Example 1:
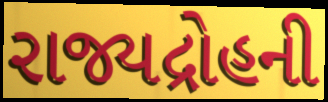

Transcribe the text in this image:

રાજ્યદ્રોહની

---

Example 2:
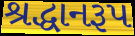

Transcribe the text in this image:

શ્રદ્ધાનરૂપ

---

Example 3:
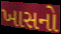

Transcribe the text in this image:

ખાસનો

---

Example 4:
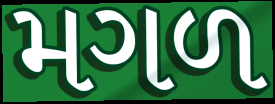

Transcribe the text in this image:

મગળ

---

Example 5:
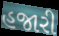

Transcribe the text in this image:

હજારી